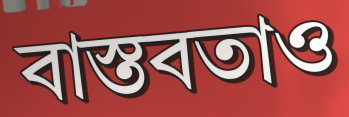
বাস্তবতাও